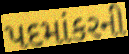
પદમાંકરની